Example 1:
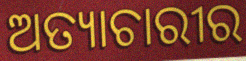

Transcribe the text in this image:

ଅତ୍ୟାଚାରୀର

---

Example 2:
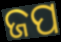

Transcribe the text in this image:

ଜପ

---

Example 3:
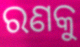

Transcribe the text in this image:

ରଣକୁ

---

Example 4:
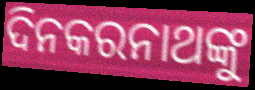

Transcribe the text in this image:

ଦିନକରନାଥଙ୍କୁ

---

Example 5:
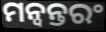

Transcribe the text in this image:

ମନ୍ବନ୍ତରଂ